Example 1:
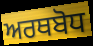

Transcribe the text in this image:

ਅਰਥਬੋਧ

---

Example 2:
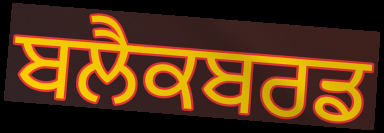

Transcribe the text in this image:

ਬਲੈਕਬਰਡ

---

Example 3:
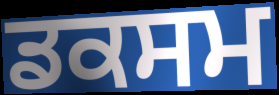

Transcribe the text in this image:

ਡਕਸਮ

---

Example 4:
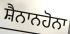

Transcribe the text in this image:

ਸ਼ੈਨਾਨਹੋਨਾ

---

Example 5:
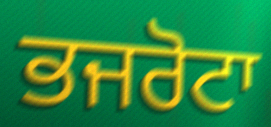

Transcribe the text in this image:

ਭਜਰੋਟਾ